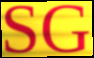
SG